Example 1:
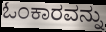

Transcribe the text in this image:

ಓಂಕಾರವನ್ನು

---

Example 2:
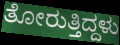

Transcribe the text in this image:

ತೋರುತ್ತಿದ್ದಳು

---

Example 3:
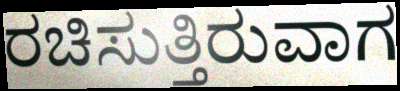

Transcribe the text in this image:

ರಚಿಸುತ್ತಿರುವಾಗ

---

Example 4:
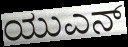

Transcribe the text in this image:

ಯುಎನ್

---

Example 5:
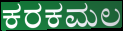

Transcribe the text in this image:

ಕರಕಮಲ